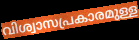
വിശ്വാസപ്രകാരമുള്ള